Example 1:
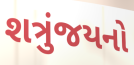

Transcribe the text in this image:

શત્રુંજયનો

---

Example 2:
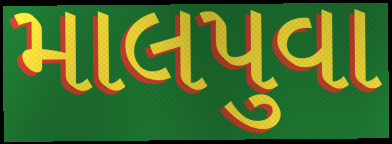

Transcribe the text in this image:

માલપુવા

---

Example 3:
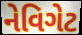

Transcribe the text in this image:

નેવિગેટ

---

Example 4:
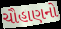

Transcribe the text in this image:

ચૌહાણનો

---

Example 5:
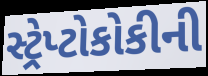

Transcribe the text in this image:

સ્ટ્રેપ્ટોકોકીની